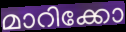
മാറിക്കോ